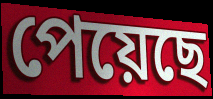
পেয়েছে